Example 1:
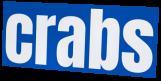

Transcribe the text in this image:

crabs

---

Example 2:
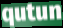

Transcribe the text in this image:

qutun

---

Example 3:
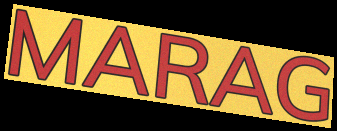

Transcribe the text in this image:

MARAG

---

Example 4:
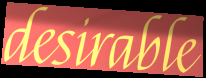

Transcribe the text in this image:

desirable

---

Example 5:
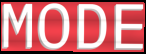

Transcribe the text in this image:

MODE